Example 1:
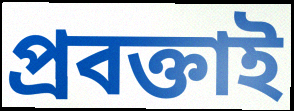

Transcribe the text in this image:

প্রবক্তাই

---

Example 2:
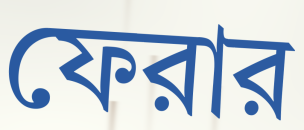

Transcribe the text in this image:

ফেরার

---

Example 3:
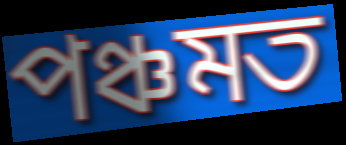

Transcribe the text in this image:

পঞ্চমত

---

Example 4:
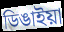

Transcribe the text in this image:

ডিঙাইয়া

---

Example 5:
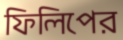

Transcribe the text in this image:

ফিলিপের